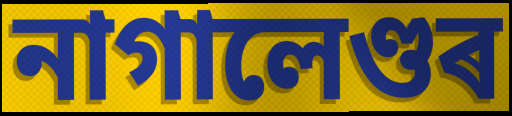
নাগালেণ্ডৰ